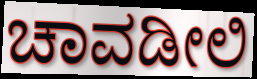
ಚಾವಡೀಲಿ